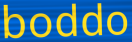
boddo